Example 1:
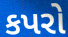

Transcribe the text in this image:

કપરો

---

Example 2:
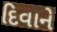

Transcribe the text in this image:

દિવાને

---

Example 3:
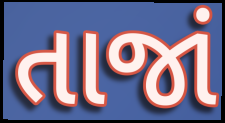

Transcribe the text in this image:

તાજાં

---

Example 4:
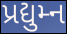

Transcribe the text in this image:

પ્રદ્યુમ્ન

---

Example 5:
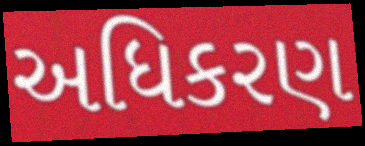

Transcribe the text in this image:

અધિકરણ